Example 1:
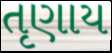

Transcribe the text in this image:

તૃણાય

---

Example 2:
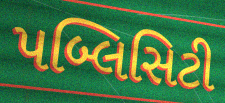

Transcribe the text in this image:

પબ્લિસિટી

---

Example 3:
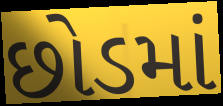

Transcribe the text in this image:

છોડમાં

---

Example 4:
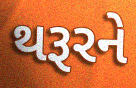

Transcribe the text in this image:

થરૂરને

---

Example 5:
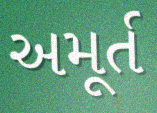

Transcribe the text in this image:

અમૂર્ત